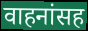
वाहनांसह